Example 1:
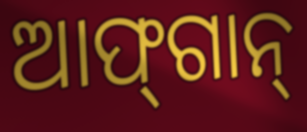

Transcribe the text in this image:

ଆଫ୍‌ଗାନ୍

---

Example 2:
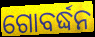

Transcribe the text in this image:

ଗୋବର୍ଦ୍ଧନ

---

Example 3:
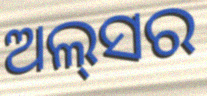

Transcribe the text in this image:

ଅଲ୍‌ସର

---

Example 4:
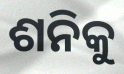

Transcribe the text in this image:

ଶନିକୁ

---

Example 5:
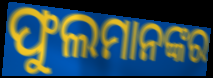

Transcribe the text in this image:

ଫୁଲମାନଙ୍କର